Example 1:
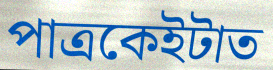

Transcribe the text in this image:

পাত্ৰকেইটাত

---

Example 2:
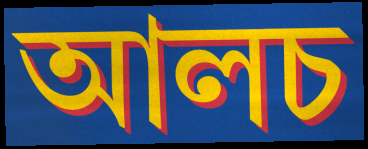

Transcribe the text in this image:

আলচ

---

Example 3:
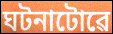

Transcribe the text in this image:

ঘটনাটোৱে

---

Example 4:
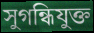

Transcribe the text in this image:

সুগন্ধিযুক্ত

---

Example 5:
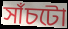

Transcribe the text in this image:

সাঁচটো